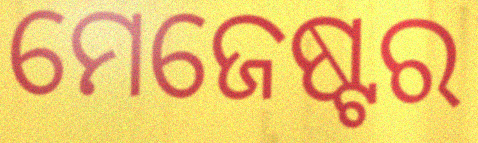
ମେଜେଷ୍ଟର